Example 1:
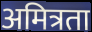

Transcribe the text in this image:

अमित्रता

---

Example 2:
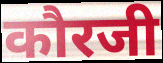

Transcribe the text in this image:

कौरजी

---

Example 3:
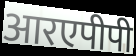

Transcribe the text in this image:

आरएपीपी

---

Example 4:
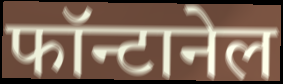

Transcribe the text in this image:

फॉन्टानेल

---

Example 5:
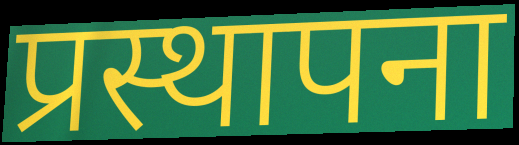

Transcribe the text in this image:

प्रस्थापना